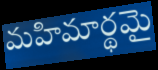
మహిమార్థమై